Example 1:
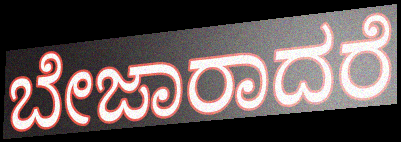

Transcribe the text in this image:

ಬೇಜಾರಾದರೆ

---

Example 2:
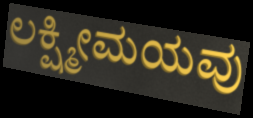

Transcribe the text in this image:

ಲಕ್ಷ್ಮೀಮಯವು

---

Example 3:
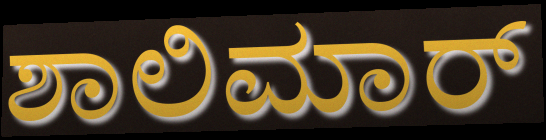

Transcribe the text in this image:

ಶಾಲಿಮಾರ್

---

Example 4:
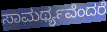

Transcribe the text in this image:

ಸಾಮರ್ಥ್ಯವೆಂದರೆ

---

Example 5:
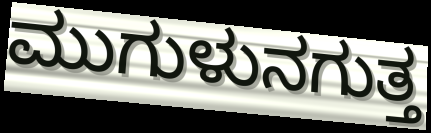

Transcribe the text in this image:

ಮುಗುಳುನಗುತ್ತ